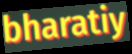
bharatiy